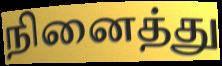
நினைத்து